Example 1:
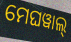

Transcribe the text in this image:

ମେଘୱାଲ୍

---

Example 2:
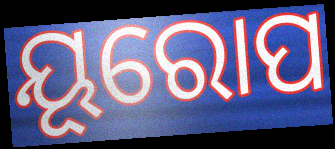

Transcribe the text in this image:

ୟୂରୋପ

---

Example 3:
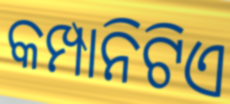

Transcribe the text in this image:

କମ୍ପାନିଟିଏ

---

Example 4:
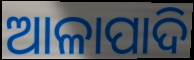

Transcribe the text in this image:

ଆଳାପାଦି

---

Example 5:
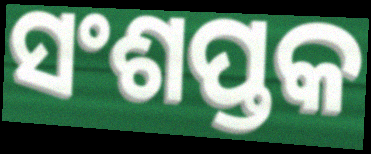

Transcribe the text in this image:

ସଂଶପ୍ତକ